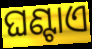
ଘଣ୍ଟାଏ